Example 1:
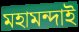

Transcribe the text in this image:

মহামন্দাই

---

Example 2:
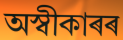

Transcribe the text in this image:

অস্বীকাৰৰ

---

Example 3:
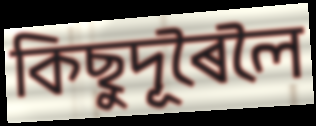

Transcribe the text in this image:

কিছুদূৰৈলৈ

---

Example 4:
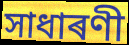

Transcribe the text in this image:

সাধাৰণী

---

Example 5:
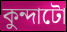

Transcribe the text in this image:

কুন্দাটো